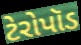
ટેરોપૉડ